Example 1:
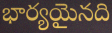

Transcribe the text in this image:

భార్యయైనది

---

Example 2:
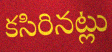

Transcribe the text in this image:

కసిరినట్లు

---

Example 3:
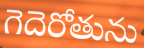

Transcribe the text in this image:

గెదెరోతును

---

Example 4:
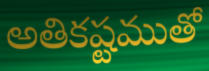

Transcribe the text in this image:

అతికష్టముతో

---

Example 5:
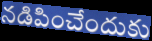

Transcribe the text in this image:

నడిపించేందుకు